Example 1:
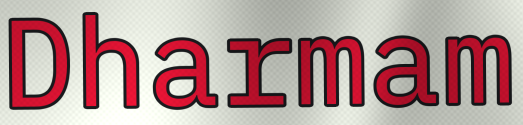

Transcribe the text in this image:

Dharmam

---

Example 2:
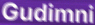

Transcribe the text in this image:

Gudimni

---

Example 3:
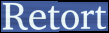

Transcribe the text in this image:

Retort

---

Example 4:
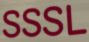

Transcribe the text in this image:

SSSL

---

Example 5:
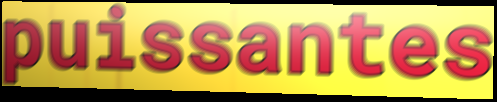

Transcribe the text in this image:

puissantes